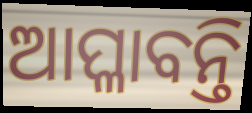
ଆପ୍ଳାବନ୍ତି